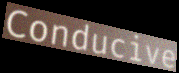
Conducive